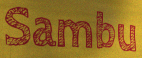
Sambu